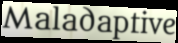
Maladaptive